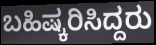
ಬಹಿಷ್ಕರಿಸಿದ್ದರು